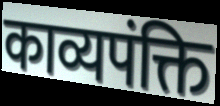
काव्यपंक्ति